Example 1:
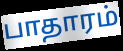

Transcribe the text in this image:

பாதாரம்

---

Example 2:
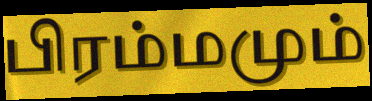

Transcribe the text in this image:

பிரம்மமும்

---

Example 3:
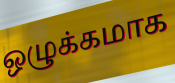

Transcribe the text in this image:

ஒழுக்கமாக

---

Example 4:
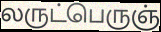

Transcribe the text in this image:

லருட்பெருஞ்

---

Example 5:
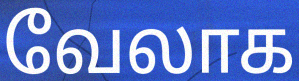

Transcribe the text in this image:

வேலாக